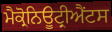
ਮੈਕ੍ਰੋਨਿਊਟ੍ਰੀਐਂਟਸ